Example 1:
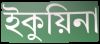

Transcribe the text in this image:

ইকুয়িনা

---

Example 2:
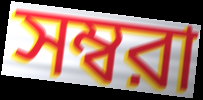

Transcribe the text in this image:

সম্বরা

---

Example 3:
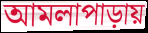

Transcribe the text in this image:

আমলাপাড়ায়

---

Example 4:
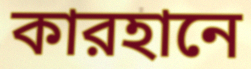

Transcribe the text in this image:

কারহানে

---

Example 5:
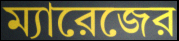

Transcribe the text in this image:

ম্যারেজের